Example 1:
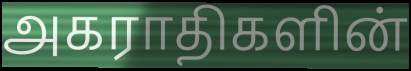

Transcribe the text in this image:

அகராதிகளின்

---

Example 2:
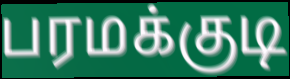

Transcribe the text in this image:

பரமக்குடி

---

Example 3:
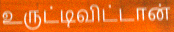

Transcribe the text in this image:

உருட்டிவிட்டான்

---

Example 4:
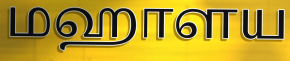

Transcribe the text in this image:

மஹாளய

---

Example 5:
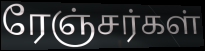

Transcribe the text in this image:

ரேஞ்சர்கள்